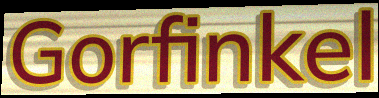
Gorfinkel